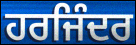
ਹਰਜਿੰਦਰ